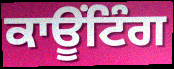
ਕਾਊਂਟਿੰਗ